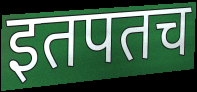
इतपतच